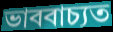
ভাববাচ্যত